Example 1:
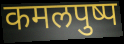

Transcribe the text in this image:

कमलपुष्प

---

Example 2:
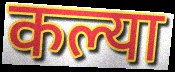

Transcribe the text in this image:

कल्या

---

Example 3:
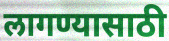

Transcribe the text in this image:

लागण्यासाठी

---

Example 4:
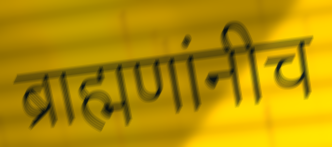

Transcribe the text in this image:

ब्राह्मणांनीच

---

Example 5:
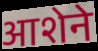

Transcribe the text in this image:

आशेने